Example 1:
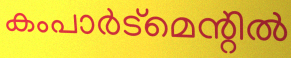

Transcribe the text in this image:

കംപാർട്മെന്റിൽ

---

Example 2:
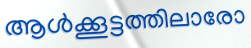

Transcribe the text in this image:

ആൾക്കൂട്ടത്തിലാരോ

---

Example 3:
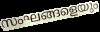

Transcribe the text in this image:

സംഘങ്ങളെയും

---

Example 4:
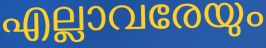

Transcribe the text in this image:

എല്ലാവരേയും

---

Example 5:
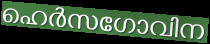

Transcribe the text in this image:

ഹെർസഗോവിന